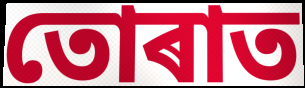
তোৰাত